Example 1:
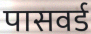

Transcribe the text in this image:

पासवर्ड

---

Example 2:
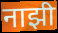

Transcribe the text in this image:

नाझी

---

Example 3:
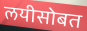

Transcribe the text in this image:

लयीसोबत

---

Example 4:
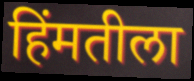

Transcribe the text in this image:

हिंमतीला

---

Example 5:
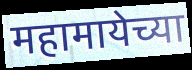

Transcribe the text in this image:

महामायेच्या